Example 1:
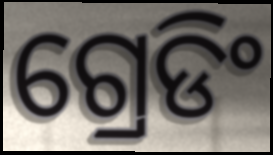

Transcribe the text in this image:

ଗ୍ରେଡିଂ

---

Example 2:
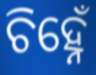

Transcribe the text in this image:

ଚିହ୍ନେଁ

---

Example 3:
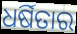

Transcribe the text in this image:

ଧର୍ଷିତାର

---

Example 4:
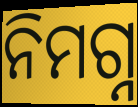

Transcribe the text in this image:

ନିମଗ୍ନ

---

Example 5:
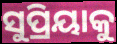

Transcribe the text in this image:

ସୁପ୍ରିୟାକୁ